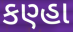
કણ્હા